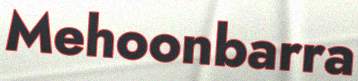
Mehoonbarra